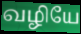
வழியே